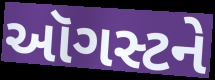
ઑગસ્ટને